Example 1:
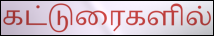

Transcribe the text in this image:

கட்டுரைகளில்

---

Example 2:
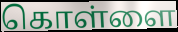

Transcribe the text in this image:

கொள்ளை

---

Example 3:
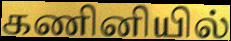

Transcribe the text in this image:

கணினியில்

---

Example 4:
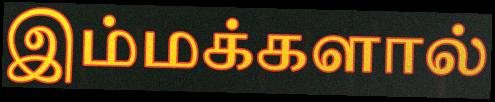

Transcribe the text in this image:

இம்மக்களால்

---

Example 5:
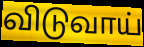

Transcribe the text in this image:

விடுவாய்